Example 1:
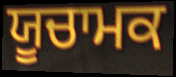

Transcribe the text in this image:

ਯੂਚਾਮਕ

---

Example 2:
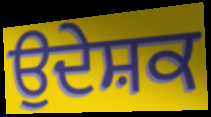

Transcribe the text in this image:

ਉਦੇਸ਼ਕ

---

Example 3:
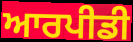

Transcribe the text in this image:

ਆਰਪੀਡੀ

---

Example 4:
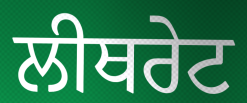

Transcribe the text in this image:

ਲੀਥਰੇਟ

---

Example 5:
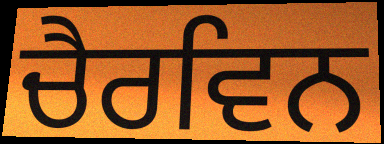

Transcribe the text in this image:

ਚੈਰਵਿਨ